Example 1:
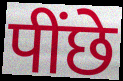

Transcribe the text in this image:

पींछे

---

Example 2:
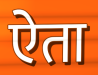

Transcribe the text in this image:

ऐता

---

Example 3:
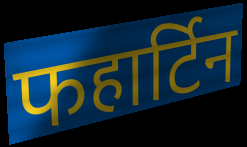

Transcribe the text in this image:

फहार्टिन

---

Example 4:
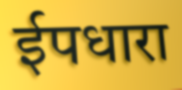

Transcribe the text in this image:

ईपधारा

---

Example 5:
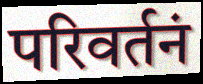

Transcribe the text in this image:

परिवर्तनं